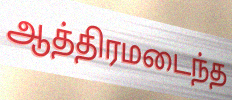
ஆத்திரமடைந்த